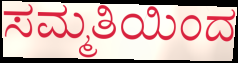
ಸಮ್ಮತಿಯಿಂದ